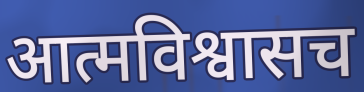
आत्मविश्वासच